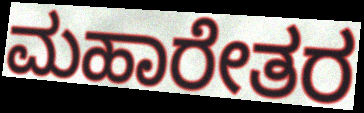
ಮಹಾರೇತರ